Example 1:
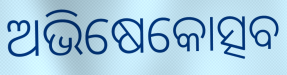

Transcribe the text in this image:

ଅଭିଷେକୋତ୍ସବ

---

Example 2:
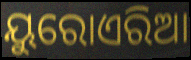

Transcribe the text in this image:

ୟୁରୋଏରିଆ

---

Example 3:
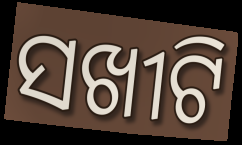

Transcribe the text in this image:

ସଖୀଟି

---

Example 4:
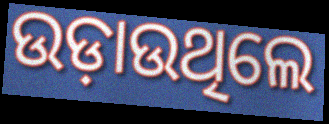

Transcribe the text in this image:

ଉଡ଼ାଉଥିଲେ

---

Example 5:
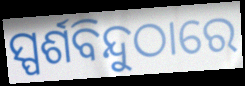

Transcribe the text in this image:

ସ୍ପର୍ଶବିନ୍ଦୁଠାରେ